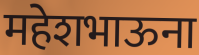
महेशभाऊना